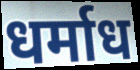
धर्माध